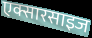
एक्सारसाइज